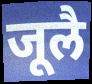
जूलै